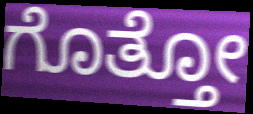
ಗೊತ್ತೋ